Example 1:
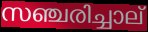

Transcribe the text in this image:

സഞ്ചരിച്ചാല്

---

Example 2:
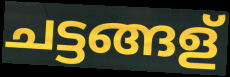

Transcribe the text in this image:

ചട്ടങ്ങള്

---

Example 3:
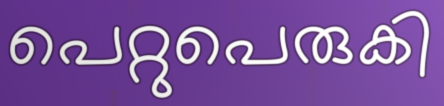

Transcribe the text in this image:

പെറ്റുപെരുകി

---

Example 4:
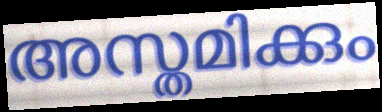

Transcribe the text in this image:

അസ്തമിക്കും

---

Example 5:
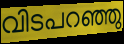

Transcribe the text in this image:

വിടപറഞ്ഞു